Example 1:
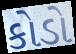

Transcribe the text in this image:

કોડો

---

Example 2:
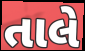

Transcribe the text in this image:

તાલે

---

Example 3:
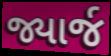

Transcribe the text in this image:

જ્યાર્જ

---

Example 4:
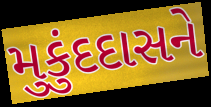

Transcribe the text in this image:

મુકુંદદાસને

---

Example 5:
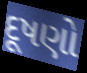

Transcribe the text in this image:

દૂષણો